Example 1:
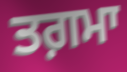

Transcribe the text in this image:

ਤਗ਼ਮਾ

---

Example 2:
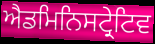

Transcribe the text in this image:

ਐਡਮਿਨਿਸਟ੍ਰੇਟਿਵ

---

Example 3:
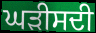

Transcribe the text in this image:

ਘੜੀਸਦੀ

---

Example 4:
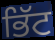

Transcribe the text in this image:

ਭਿੱਟ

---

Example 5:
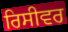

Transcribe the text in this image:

ਰਿਸੀਵਰ